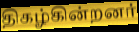
திகழ்கின்றனர்